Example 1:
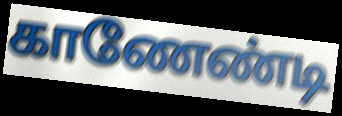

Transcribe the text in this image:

காணேண்டி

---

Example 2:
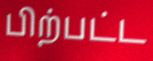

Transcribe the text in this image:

பிற்பட்ட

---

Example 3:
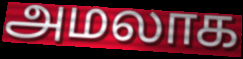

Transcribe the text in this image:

அமலாக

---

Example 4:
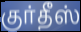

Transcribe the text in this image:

குர்தீஸ்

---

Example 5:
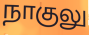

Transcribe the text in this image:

நாகுலு